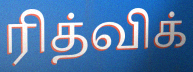
ரித்விக்